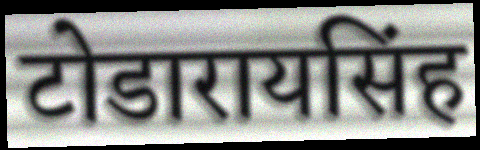
टोडारायसिंह